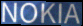
NOKIA